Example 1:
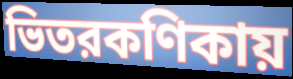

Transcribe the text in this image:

ভিতরকণিকায়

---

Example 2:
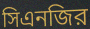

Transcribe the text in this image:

সিএনজির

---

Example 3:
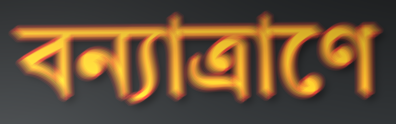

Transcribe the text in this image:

বন্যাত্রাণে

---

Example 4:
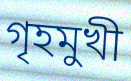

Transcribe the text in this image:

গৃহমুখী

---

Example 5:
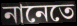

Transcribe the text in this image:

নানেতে